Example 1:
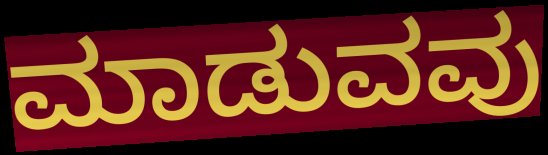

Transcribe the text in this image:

ಮಾಡುವವು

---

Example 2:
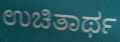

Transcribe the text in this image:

ಉಚಿತಾರ್ಥ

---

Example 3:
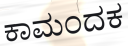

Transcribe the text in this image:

ಕಾಮಂದಕ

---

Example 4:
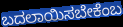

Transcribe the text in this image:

ಬದಲಾಯಿಸಬೇಕೆಂಬ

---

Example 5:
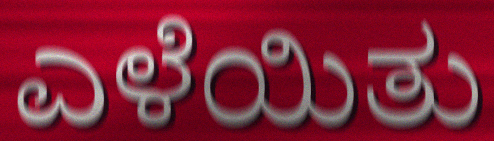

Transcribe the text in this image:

ಎಳೆಯಿತು